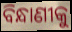
ବିନ୍ଧାଣୀକୁ